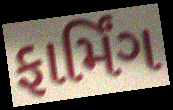
ફાર્મિંગ